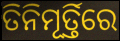
ତିନିମୂର୍ତ୍ତିରେ